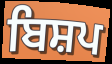
ਬਿਸ਼ਪ